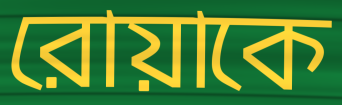
রোয়াকে